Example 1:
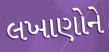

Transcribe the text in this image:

લખાણોને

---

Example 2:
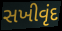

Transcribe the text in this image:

સખીવૃંદ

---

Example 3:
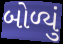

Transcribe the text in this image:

બોળ્યું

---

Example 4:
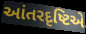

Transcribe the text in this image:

આંતરદૃષ્ટિએ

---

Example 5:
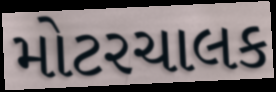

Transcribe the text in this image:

મોટરચાલક